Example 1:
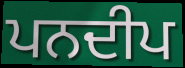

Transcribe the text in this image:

ਪਨਦੀਪ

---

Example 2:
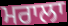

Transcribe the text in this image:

ਮਰਾਲਾ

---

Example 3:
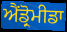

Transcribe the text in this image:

ਐਂਡ੍ਰੋਮੀਡਾ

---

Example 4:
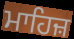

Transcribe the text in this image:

ਮਾਹਿਜ਼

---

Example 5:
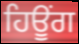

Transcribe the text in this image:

ਹਿਊੰਗ